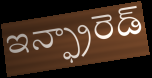
ఇన్ఫ్రారెడ్